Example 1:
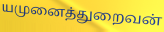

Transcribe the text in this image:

யமுனைத்துறைவன்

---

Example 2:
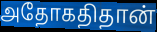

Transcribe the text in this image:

அதோகதிதான்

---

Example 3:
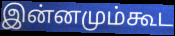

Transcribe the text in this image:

இன்னமும்கூட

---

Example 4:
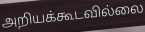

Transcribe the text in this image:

அறியக்கூடவில்லை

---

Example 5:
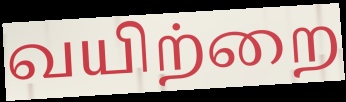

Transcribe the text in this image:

வயிற்றை